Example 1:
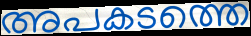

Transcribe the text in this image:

അപകടത്തെ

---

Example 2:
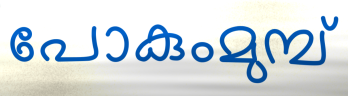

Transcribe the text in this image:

പോകുംമുമ്പ്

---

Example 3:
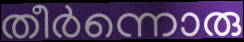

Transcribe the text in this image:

തീർന്നൊരു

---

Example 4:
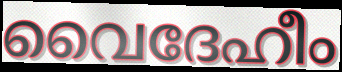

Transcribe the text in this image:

വൈദേഹീം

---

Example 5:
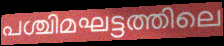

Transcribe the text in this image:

പശ്ചിമഘട്ടത്തിലെ